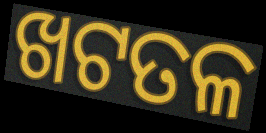
ଖଟତଳ